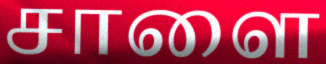
சாளை